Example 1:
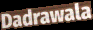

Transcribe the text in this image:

Dadrawala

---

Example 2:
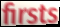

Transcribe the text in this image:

firsts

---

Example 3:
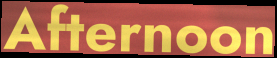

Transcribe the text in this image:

Afternoon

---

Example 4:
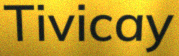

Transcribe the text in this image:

Tivicay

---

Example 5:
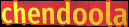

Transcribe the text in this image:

chendoola